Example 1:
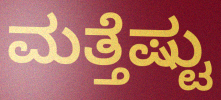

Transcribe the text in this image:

ಮತ್ತೆಷ್ಟು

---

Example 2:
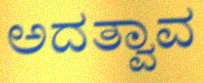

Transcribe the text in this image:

ಅದತ್ವಾವ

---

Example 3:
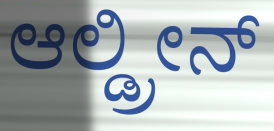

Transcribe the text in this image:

ಆಲ್ಡ್ರೀನ್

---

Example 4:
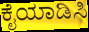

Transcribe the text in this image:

ಕೈಯಾಡಿಸಿ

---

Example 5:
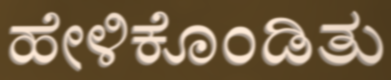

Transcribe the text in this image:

ಹೇಳಿಕೊಂಡಿತು